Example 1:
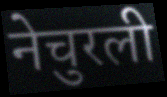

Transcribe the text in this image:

नेचुरली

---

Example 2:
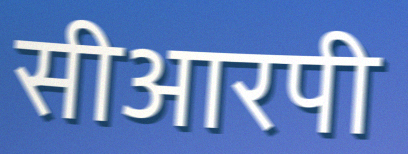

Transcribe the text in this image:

सीआरपी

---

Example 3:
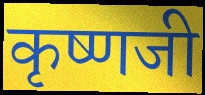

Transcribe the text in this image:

कृष्णजी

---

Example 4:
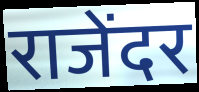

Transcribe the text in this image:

राजेंदर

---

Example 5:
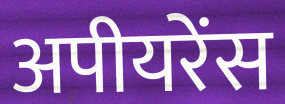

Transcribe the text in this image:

अपीयरेंस